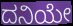
ದನಿಯೇ